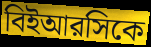
বিইআরসিকে